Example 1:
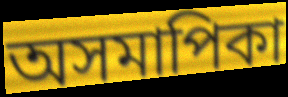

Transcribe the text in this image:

অসমাপিকা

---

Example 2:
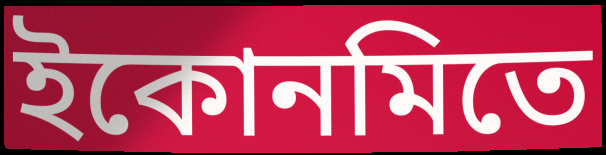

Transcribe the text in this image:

ইকোনমিতে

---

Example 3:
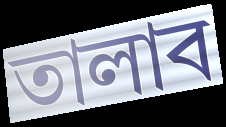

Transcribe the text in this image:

তালাব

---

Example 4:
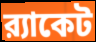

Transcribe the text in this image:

র‍্যাকেট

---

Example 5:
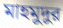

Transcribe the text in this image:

মাহমুদুর